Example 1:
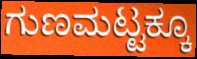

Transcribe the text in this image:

ಗುಣಮಟ್ಟಕ್ಕೂ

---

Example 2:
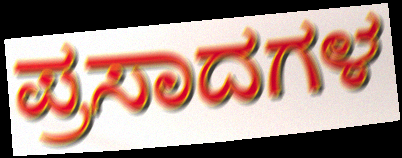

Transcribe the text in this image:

ಪ್ರಸಾದಗಳ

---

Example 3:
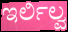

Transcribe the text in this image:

ಇರ್ಲಿಲ್ವ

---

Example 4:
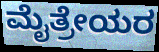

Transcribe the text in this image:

ಮೈತ್ರೇಯರ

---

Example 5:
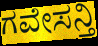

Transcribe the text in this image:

ಗವೇಸನ್ತಿ